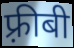
फ़्रीबी